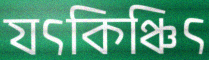
যৎকিঞ্চিৎ